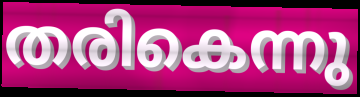
തരികെന്നു